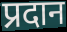
प्रदान